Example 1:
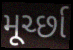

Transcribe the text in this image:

મૂર્ચ્છા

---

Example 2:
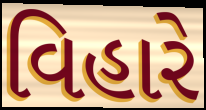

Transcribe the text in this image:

વિહારે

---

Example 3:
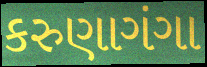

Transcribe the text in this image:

કરુણાગંગા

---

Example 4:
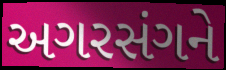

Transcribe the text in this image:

અગરસંગને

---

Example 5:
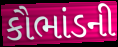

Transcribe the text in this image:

કૌભાંડની